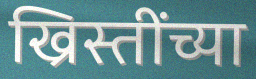
ख्रिस्तींच्या